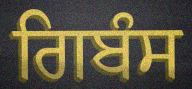
ਗਿਬੰਸ